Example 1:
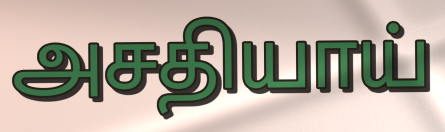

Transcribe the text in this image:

அசதியாய்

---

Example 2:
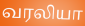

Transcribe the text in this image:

வரலியா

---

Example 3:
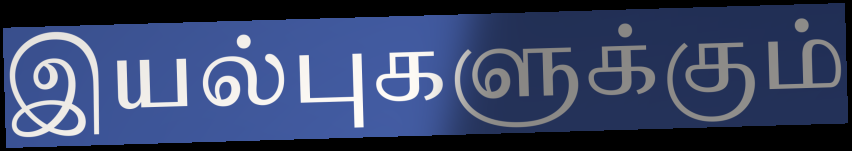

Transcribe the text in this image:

இயல்புகளுக்கும்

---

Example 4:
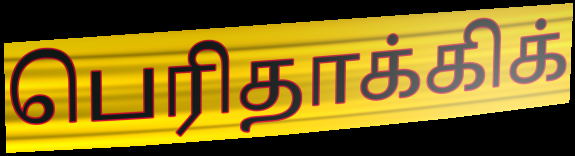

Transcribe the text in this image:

பெரிதாக்கிக்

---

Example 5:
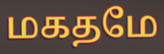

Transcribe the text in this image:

மகதமே